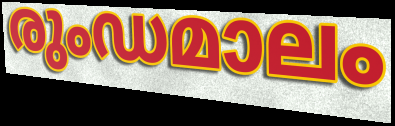
രുംഡമാലം